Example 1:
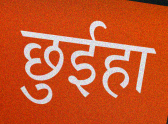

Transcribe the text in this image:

छुईहा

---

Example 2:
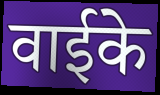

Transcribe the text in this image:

वाईके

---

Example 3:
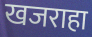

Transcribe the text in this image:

खजराहा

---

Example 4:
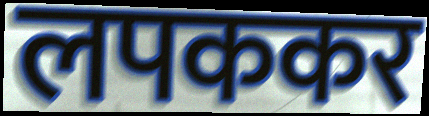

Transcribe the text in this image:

लपककर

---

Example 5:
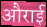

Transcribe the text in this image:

औराई